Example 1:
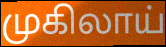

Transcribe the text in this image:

முகிலாய்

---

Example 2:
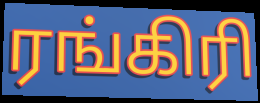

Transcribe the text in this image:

ரங்கிரி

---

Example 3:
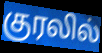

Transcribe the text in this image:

குரலில்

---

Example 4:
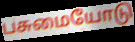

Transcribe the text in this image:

பசுமையோடு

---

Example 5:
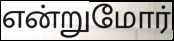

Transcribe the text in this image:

என்றுமோர்